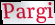
Pargi